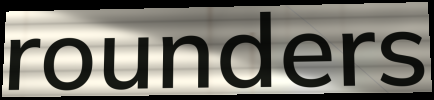
rounders